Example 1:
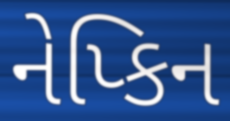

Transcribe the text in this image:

નેપ્કિન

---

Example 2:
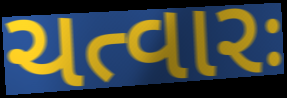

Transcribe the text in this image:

ચત્વારઃ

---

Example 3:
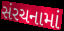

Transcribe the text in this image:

સંરચનામાં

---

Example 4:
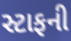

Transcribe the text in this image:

સ્ટાફની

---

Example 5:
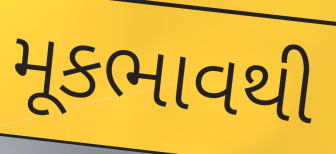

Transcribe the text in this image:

મૂકભાવથી